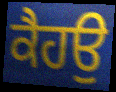
ਕੈਹਉ